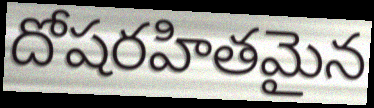
దోషరహితమైన